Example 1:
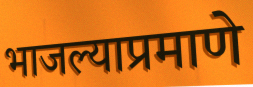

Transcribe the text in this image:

भाजल्याप्रमाणे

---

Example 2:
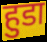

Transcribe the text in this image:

हुडा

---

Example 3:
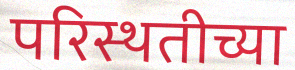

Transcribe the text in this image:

परिस्थतीच्या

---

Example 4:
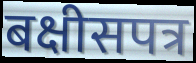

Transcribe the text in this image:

बक्षीसपत्र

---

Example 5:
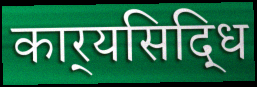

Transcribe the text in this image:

कार्यसिद्धि